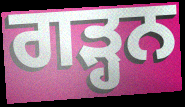
ਗੜ੍ਹਨ